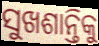
ସୁଖଶାନ୍ତିକୁ